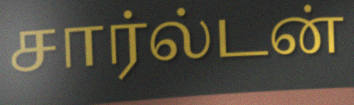
சார்ல்டன்